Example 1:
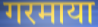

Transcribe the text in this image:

गरमाया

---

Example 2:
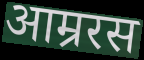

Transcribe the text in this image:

आम्ररस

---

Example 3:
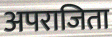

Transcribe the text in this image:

अपराजिता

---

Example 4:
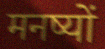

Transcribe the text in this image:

मनष्यों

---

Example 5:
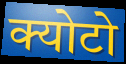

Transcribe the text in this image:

क्‍योटो